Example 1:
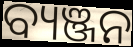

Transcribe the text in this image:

ବ୍ୟଞ୍ଜନ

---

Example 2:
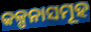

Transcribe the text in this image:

କଳ୍ପନାସମୂହ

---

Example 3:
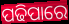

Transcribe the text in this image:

ପଢିପାରେ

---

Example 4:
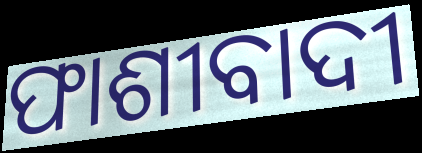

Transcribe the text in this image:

ଫାଶୀବାଦୀ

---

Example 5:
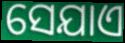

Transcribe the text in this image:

ସେଯାଏ